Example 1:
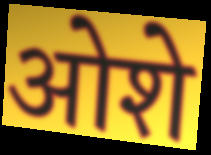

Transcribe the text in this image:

ओशे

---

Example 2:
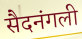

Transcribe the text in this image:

सैदनंगली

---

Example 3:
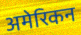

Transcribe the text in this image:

अमेरिकन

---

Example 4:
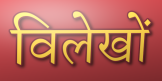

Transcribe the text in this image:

विलेखों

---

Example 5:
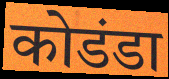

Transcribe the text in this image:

कोडंडा